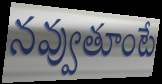
నవ్వుతూంటే